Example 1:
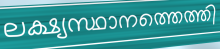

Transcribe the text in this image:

ലക്ഷ്യസ്ഥാനത്തെത്തി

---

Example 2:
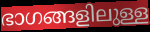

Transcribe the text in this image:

ഭാഗങ്ങളിലുള്ള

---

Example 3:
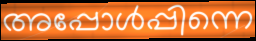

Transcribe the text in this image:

അപ്പോൾപ്പിന്നെ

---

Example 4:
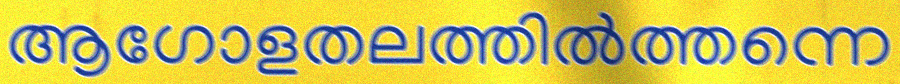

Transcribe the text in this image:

ആഗോളതലത്തിൽത്തന്നെ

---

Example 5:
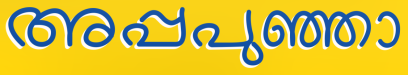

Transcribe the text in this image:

അപ്പപുഞ്ഞാ